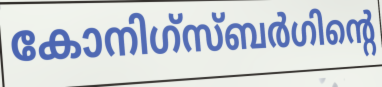
കോനിഗ്സ്ബർഗിന്റെ